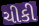
ચીકી